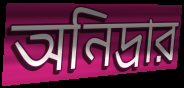
অনিদ্রার